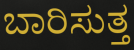
ಬಾರಿಸುತ್ತ